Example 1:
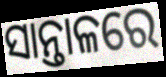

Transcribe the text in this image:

ସାନ୍ତାଳରେ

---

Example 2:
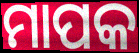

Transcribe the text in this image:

ମାପକ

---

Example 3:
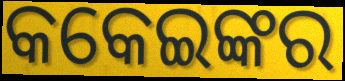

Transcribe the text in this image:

କକେଇଙ୍କର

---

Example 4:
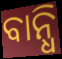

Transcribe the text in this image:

ବାନ୍ଧି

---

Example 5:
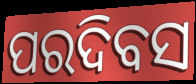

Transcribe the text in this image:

ପରଦିବସ